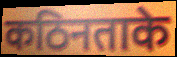
कठिनताके